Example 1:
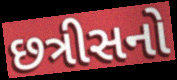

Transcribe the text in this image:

છત્રીસનો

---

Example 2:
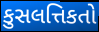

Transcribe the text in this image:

કુસલત્તિકતો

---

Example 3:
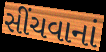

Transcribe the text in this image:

સીંચવાનાં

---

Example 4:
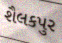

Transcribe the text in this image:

શૈલકપુર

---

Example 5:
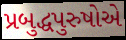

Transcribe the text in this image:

પ્રબુદ્ધપુરુષોએ